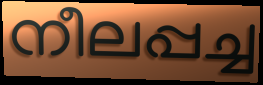
നീലപ്പച്ച